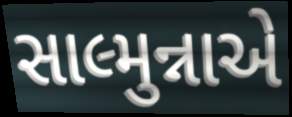
સાલ્મુન્નાએ